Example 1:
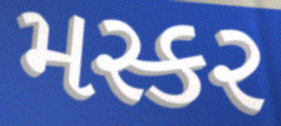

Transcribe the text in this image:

મસ્કર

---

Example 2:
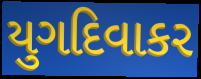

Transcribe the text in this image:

યુગદિવાકર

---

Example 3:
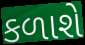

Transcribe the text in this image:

કળાશે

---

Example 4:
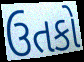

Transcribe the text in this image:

ઉતકો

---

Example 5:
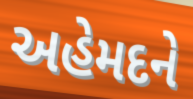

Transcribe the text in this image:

અહેમદને